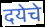
दयेचे